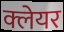
क्‍लेयर